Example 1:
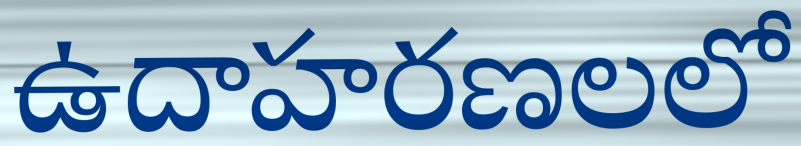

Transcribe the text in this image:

ఉదాహరణలలో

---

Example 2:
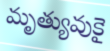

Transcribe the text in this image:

మృత్యువుకై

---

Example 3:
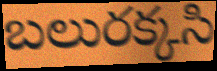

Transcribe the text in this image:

బలురక్కసి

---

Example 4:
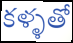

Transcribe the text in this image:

కళ్ళతో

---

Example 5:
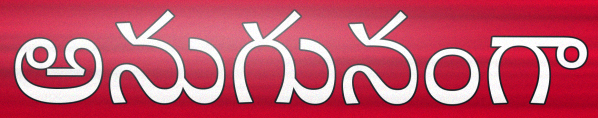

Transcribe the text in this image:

అనుగునంగా